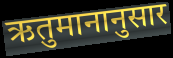
ऋतुमानानुसार